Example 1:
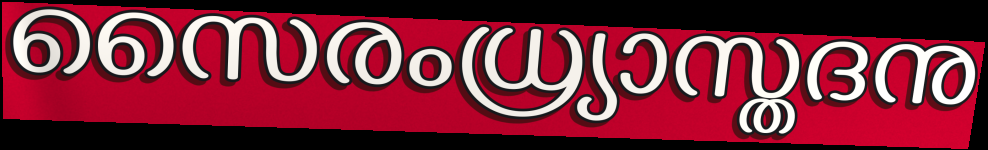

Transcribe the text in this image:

സൈരംധ്ര്യാസ്തദനു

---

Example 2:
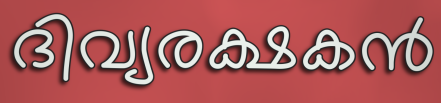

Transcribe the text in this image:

ദിവ്യരക്ഷകൻ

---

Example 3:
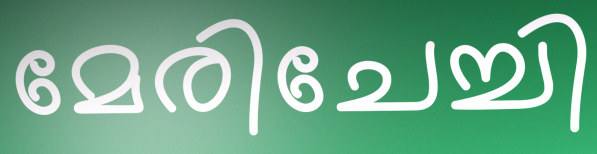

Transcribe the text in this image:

മേരിചേച്ചി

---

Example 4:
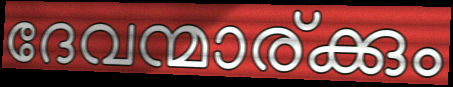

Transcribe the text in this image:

ദേവന്മാര്ക്കും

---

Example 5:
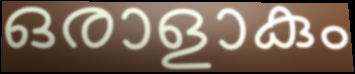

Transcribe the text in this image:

ഒരാളാകും